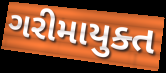
ગરીમાયુક્ત